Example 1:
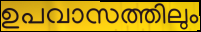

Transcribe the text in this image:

ഉപവാസത്തിലും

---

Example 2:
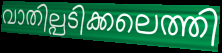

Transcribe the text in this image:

വാതില്പടിക്കലെത്തി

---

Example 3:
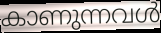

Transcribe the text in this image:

കാണുന്നവൾ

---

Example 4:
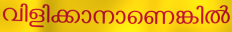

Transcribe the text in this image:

വിളിക്കാനാണെങ്കിൽ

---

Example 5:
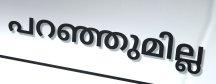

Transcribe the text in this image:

പറഞ്ഞുമില്ല